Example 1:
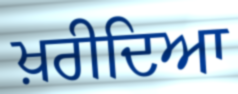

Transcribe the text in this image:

ਖ਼ਰੀਦਿਆ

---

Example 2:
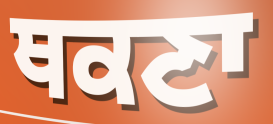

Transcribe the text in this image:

ਥਕਣਾ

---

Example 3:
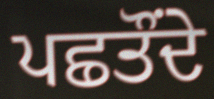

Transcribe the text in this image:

ਪਛਤੌਂਦੇ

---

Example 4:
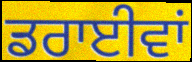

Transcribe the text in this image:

ਡਰਾਈਵਾਂ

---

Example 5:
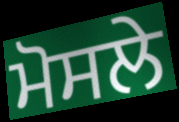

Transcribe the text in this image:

ਮੋਸਲੇ